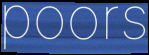
poors